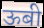
ऊबी